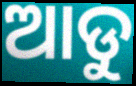
ଆଡୁ